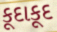
કૂદાકૂદ